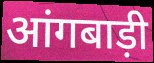
आंगबाड़ी